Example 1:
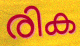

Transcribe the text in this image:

രിക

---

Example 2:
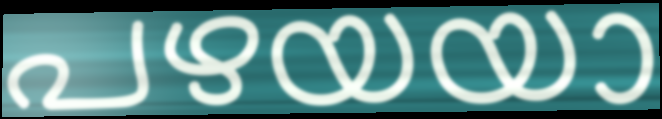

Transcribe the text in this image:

പഴയയാ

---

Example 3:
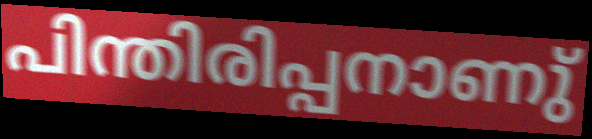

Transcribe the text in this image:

പിന്തിരിപ്പനാണു്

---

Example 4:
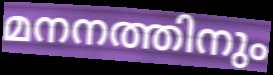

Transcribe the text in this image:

മനനത്തിനും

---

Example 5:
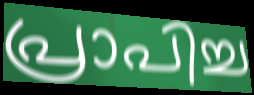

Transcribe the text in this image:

പ്രാപിച്ച